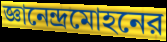
জ্ঞানেন্দ্রমোহনের